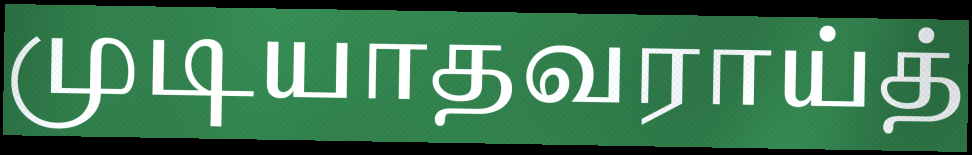
முடியாதவராய்த்